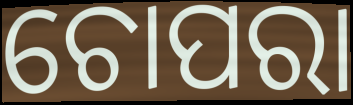
ଚୋପରା